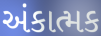
અંકાત્મક